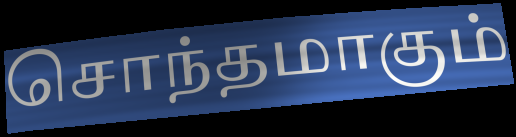
சொந்தமாகும்